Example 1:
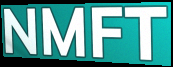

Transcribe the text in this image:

NMFT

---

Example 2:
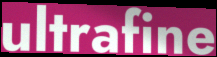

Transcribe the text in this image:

ultrafine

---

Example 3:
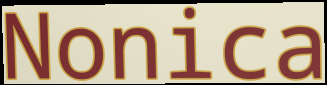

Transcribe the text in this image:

Nonica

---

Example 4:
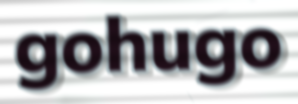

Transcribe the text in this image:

gohugo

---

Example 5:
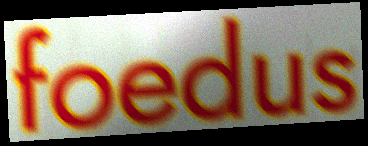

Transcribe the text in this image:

foedus